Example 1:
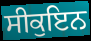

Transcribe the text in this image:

ਸੀਕੁਇਨ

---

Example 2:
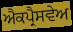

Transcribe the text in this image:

ਐਕਪ੍ਰੈਸਵੇਅ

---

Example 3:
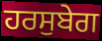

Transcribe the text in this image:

ਹਰਸੁਬੇਗ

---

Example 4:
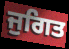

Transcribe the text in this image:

ਜੁਗਿਤ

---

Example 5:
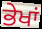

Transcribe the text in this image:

ਭੇਖਾਂ